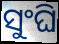
ସୁଂଘି